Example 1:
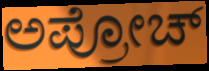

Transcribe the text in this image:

ಅಪ್ರೋಚ್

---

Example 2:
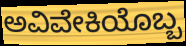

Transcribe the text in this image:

ಅವಿವೇಕಿಯೊಬ್ಬ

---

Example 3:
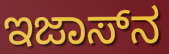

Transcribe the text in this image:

ಇಜಾಸ್‌ನ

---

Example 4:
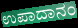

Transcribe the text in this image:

ಉಪಾದಾನಂ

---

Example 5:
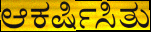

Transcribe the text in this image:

ಆಕರ್ಷಿಸಿತು